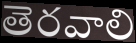
తెరవాలి